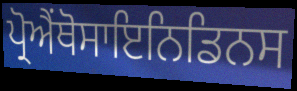
ਪ੍ਰੋਐਂਥੋਸਾਇਨਿਡਿਨਸ